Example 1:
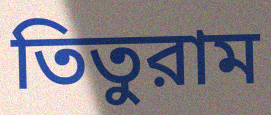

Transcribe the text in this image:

তিতুরাম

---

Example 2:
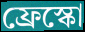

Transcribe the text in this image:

ফ্রেস্কো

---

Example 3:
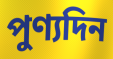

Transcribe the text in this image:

পুণ্যদিন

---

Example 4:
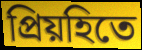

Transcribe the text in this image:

প্রিয়হিতে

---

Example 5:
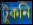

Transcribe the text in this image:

টুকনি